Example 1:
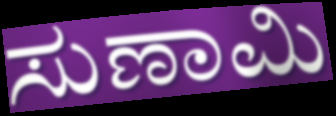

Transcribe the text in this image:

ಸುಣಾಮಿ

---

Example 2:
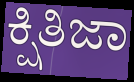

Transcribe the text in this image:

ಕ್ಷಿತಿಜಾ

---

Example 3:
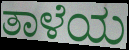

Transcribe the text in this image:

ತಾಳೆಯ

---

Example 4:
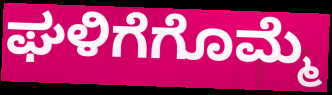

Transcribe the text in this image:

ಘಳಿಗೆಗೊಮ್ಮೆ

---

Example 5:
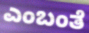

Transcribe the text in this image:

ಎಂಬಂತೆ